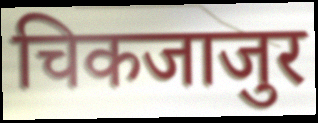
चिकजाजुर